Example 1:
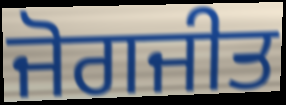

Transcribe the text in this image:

ਜੋਗਜੀਤ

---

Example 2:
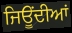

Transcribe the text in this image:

ਜਿਊਂਦੀਆਂ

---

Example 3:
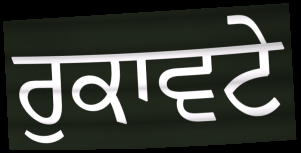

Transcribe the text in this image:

ਰੁਕਾਵਟੇ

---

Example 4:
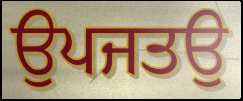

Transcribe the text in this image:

ਉਪਜਤਉ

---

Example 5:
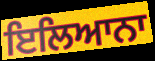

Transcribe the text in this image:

ਇਲਿਆਨਾ